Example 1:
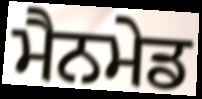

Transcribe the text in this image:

ਮੈਨਮੇਡ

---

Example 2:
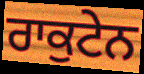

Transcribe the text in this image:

ਰਾਕੁਟੇਨ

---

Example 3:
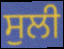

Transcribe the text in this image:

ਸੁਲੀ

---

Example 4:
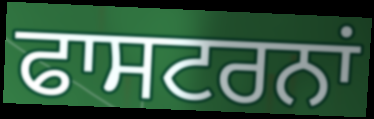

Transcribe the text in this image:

ਫਾਸਟਰਨਾਂ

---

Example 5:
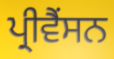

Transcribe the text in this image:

ਪ੍ਰੀਵੈਂਸਨ